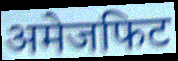
अमेजफिट